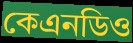
কেএনডিও